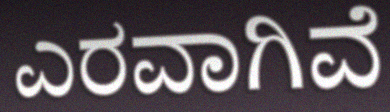
ಎರವಾಗಿವೆ